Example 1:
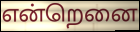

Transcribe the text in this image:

என்றெனை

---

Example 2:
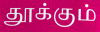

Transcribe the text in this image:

தூக்கும்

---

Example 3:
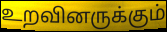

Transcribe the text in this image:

உறவினருக்கும்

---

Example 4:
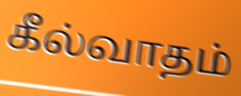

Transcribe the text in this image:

கீல்வாதம்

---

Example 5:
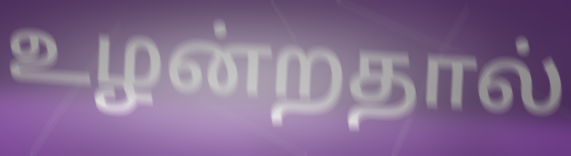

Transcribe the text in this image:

உழன்றதால்